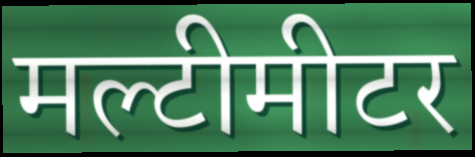
मल्टीमीटर